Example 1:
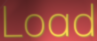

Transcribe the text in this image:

Load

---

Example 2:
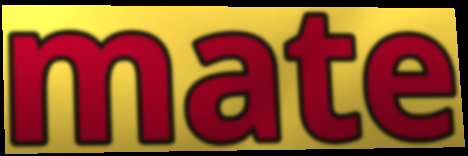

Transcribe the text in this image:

mate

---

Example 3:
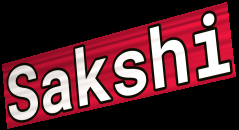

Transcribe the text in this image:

Sakshi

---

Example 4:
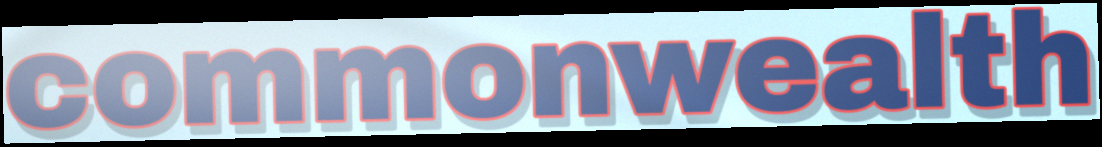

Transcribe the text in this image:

commonwealth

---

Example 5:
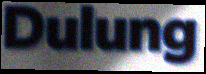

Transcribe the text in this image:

Dulung